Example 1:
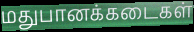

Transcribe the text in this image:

மதுபானக்கடைகள்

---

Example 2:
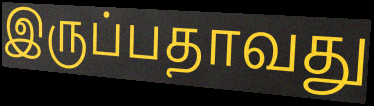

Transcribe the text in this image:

இருப்பதாவது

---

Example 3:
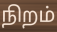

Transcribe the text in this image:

நிறம்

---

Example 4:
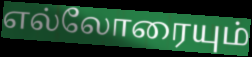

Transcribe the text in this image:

எல்லோரையும்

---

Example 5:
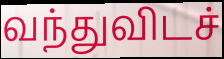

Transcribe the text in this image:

வந்துவிடச்